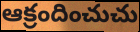
ఆక్రందించుచు